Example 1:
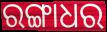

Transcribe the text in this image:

ରଙ୍ଗାଧର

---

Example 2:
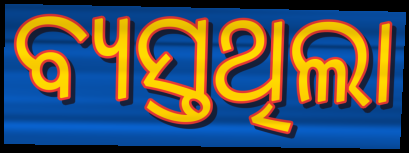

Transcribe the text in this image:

ବ୍ୟସ୍ତଥିଲା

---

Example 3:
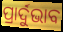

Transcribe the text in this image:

ପ୍ରାର୍ଦୁଭାବ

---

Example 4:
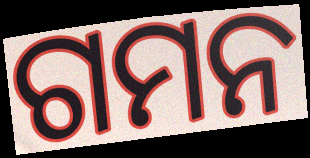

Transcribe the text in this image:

ଗମନ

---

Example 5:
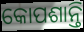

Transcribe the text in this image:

କୋପଶାନ୍ତି